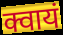
क्वायं